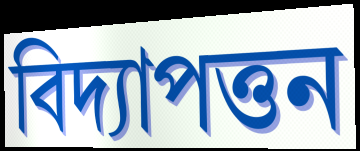
বিদ্যাপত্তন